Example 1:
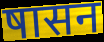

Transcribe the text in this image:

षासन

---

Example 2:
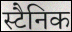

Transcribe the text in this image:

स्टैनिक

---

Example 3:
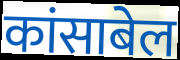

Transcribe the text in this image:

कांसाबेल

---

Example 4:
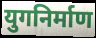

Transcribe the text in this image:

युगनिर्माण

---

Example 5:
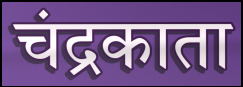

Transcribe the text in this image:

चंद्रकाता